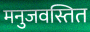
मनुजवस्तित